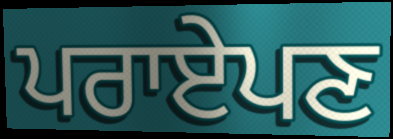
ਪਰਾਏਪਣ